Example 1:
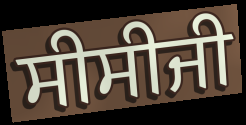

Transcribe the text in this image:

ਸੀਸੀਜੀ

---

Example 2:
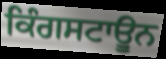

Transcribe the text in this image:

ਕਿੰਗਸਟਾਊਨ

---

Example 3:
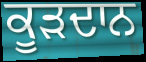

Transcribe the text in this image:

ਕੂੜਦਾਨ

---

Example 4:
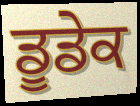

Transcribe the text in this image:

ਡੂਡੇਕ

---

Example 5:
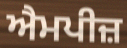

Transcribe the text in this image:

ਐਮਪੀਜ਼